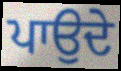
ਪਾਉਦੇ